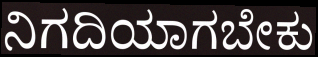
ನಿಗದಿಯಾಗಬೇಕು